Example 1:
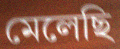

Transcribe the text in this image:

মেলেছি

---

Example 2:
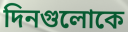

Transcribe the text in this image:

দিনগুলোকে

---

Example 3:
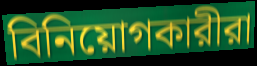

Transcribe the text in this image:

বিনিয়োগকারীরা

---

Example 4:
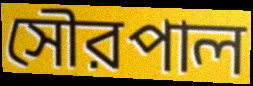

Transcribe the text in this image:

সৌরপাল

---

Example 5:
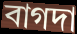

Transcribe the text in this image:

বাগদা